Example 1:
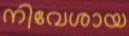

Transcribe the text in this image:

നിവേശായ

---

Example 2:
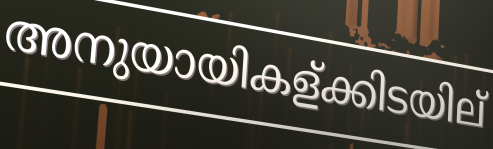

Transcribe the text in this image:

അനുയായികള്ക്കിടയില്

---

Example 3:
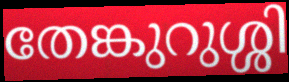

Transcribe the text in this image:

തേങ്കുറുശ്ശി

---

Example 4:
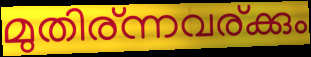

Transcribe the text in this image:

മുതിര്ന്നവര്ക്കും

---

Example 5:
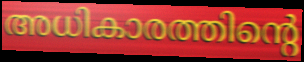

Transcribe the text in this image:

അധികാരത്തിന്റെ